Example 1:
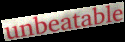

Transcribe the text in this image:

unbeatable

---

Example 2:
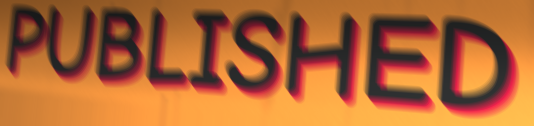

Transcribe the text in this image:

PUBLISHED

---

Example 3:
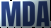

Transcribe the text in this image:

MDA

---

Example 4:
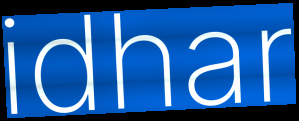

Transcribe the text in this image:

idhar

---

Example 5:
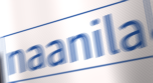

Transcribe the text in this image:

naanila